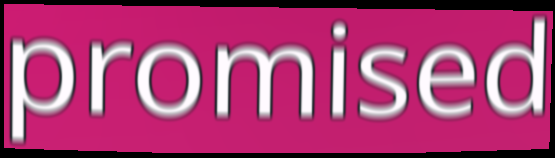
promised